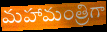
మహామంత్రిగా